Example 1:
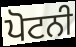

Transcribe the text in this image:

ਪੋਟਨੀ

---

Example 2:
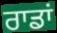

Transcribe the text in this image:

ਰਾਡਾਂ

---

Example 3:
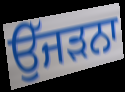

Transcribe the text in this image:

ਉੱਜੜਨਾ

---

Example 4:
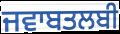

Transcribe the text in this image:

ਜਵਾਬਤਲਬੀ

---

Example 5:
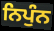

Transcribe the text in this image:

ਨਿਪੁੰਨ